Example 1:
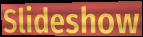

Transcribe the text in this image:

Slideshow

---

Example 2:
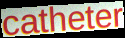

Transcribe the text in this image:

catheter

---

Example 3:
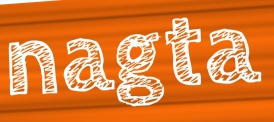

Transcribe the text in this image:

nagta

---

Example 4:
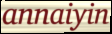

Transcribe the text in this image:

annaiyin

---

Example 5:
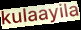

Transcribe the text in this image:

kulaayila